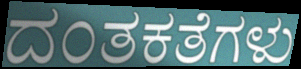
ದಂತಕತೆಗಳು